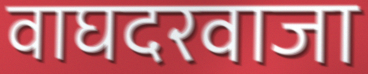
वाघदरवाजा